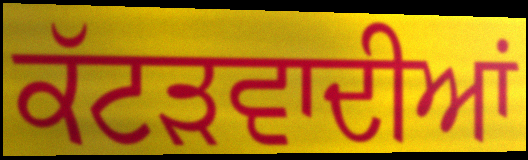
ਕੱਟੜਵਾਦੀਆਂ